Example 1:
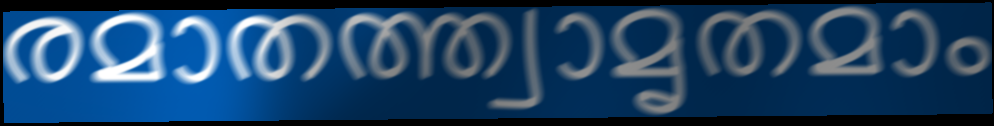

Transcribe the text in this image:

രമാതത്ത്വാമൃതമാം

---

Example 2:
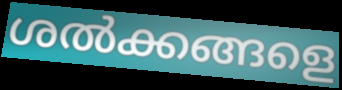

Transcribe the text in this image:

ശൽക്കങ്ങളെ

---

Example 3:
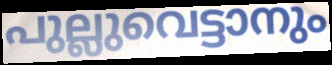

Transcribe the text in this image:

പുല്ലുവെട്ടാനും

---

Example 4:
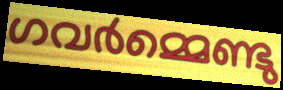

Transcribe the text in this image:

ഗവർമ്മെണ്ടു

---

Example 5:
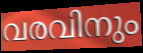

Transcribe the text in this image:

വരവിനും